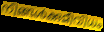
നിങ്ങൾക്കുമീവിധം